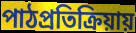
পাঠপ্রতিক্রিয়ায়